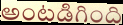
అంటడిగింది